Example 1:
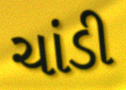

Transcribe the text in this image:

ચાંડી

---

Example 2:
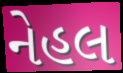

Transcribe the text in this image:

નેહલ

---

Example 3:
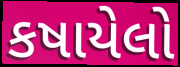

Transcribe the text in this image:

કષાયેલો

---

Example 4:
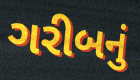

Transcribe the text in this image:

ગરીબનું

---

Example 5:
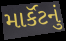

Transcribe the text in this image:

માર્કૅટનું